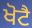
ਖੋਟੈ